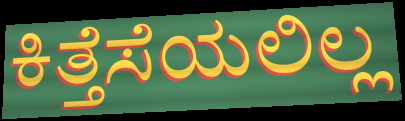
ಕಿತ್ತೆಸೆಯಲಿಲ್ಲ